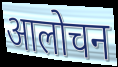
आलोचन